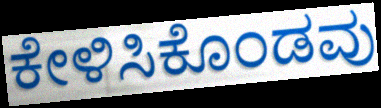
ಕೇಳಿಸಿಕೊಂಡವು